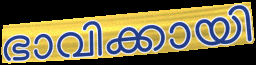
ഭാവിക്കായി